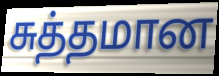
சுத்தமான